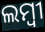
ଲମ୍ବୀ